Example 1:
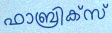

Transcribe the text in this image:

ഫാബ്രിക്സ്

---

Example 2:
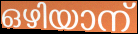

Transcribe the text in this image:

ഒഴിയാന്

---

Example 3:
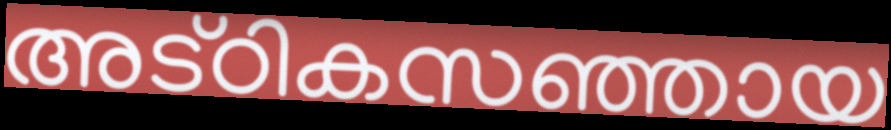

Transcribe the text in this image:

അട്ഠികസഞ്ഞായ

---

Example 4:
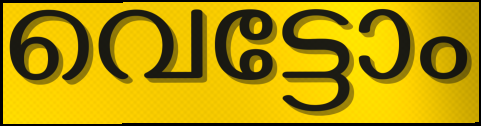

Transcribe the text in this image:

വെട്ടോം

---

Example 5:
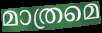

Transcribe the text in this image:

മാത്രമെ